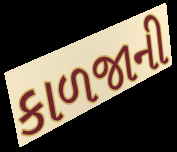
કાળજાની